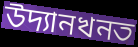
উদ্যানখনত